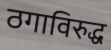
ठगाविरुद्ध